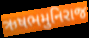
ઋષભમુનિરાજ